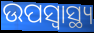
ଉପସ୍ୱାସ୍ଥ୍ୟ